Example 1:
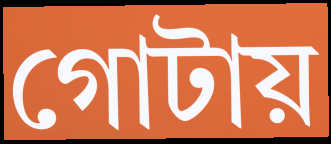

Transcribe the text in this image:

গোটায়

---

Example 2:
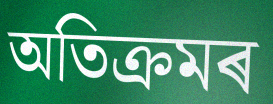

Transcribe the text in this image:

অতিক্ৰমৰ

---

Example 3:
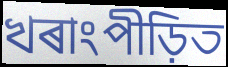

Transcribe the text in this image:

খৰাংপীড়িত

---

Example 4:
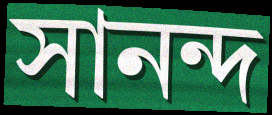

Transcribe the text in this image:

সানন্দ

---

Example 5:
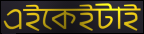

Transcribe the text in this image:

এইকেইটাই